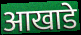
आखाडे